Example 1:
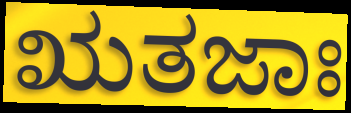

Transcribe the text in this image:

ಋತಜಾಃ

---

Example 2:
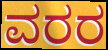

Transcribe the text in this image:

ವರರ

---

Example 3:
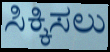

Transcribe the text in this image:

ಸಿಕ್ಕಿಸಲು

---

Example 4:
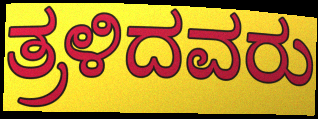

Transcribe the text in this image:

ತ್ರಳಿದವರು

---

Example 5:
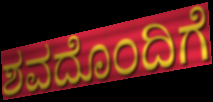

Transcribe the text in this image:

ಶವದೊಂದಿಗೆ